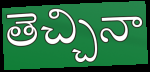
తెచ్చినా